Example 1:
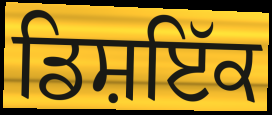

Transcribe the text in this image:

ਡਿਸ਼ਇੱਕ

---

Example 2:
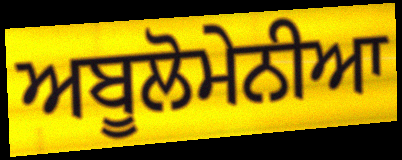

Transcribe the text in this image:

ਅਬੂਲੋਮੇਨੀਆ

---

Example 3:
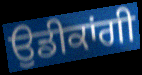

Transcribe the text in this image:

ਉਡੀਕਾਂਗੀ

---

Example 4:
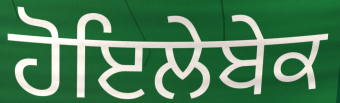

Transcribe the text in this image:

ਹੋਇਲੇਬੇਕ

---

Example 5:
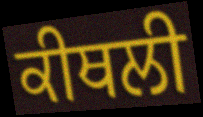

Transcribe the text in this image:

ਕੀਥਲੀ